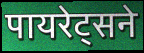
पायरेट्सने